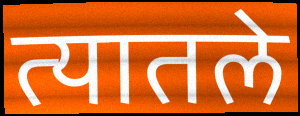
त्‍यातले